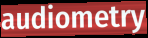
audiometry